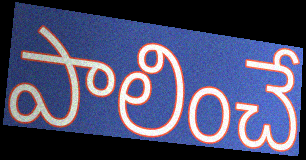
పాలించే